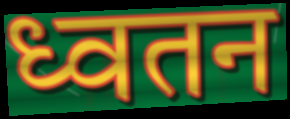
ध्वतन